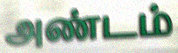
அண்டம்